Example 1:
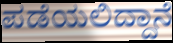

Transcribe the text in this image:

ಪಡೆಯಲಿದ್ದಾನೆ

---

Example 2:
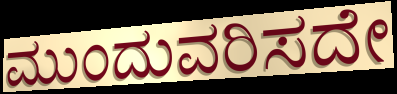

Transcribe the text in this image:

ಮುಂದುವರಿಸದೇ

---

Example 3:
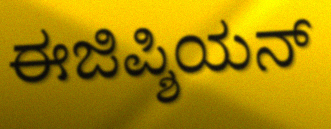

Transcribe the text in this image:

ಈಜಿಪ್ಶಿಯನ್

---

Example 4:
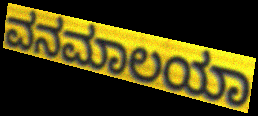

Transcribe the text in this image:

ವನಮಾಲಯಾ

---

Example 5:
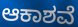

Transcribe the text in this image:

ಆಕಾಶವೆ